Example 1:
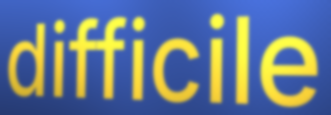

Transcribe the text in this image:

difficile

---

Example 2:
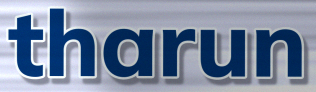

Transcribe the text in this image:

tharun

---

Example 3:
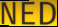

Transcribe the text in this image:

NED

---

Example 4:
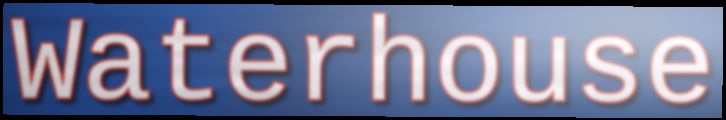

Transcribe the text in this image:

Waterhouse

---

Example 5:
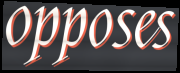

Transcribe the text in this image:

opposes